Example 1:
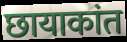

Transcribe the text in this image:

छायाकांत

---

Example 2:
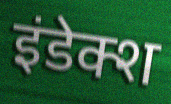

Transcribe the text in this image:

इंडेक्श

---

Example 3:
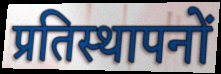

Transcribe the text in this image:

प्रतिस्थापनों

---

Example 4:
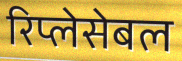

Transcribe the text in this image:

रिप्लेसेबल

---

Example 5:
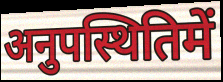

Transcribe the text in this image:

अनुपस्थितिमें